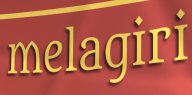
melagiri